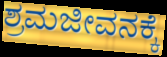
ಶ್ರಮಜೀವನಕ್ಕೆ